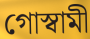
গোস্বামী